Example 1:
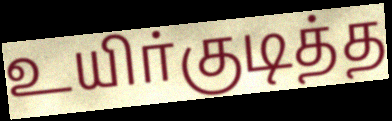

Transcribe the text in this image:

உயிர்குடித்த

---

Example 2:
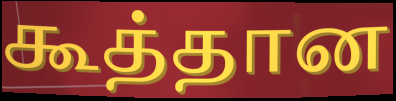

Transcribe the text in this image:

கூத்தான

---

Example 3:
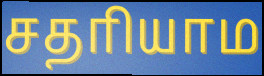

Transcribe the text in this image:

சதரியாம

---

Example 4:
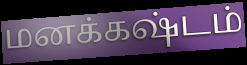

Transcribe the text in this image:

மனக்கஷ்டம்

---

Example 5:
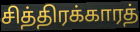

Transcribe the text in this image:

சித்திரக்காரத்